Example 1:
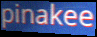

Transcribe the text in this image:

pinakee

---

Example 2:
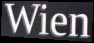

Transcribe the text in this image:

Wien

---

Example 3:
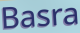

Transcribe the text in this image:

Basra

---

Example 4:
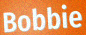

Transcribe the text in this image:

Bobbie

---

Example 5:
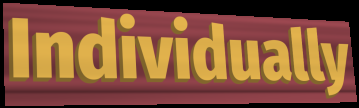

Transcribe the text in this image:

Individually